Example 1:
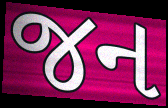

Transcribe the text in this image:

જન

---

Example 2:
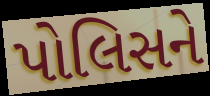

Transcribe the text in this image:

પોલિસને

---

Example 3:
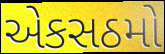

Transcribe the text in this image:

એકસઠમો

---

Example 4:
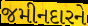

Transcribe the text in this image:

જમીનદારને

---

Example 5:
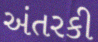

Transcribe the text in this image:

અંતરકી